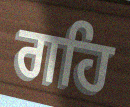
ਗਹਿ